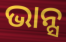
ଭାନ୍ସ